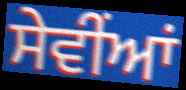
ਸੇਵੀਂਆਂ